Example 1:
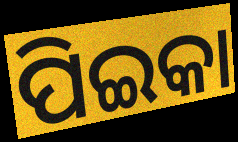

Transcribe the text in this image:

ପିଇକା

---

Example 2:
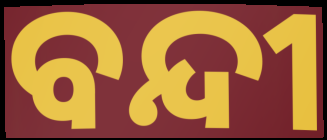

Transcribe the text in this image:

ବନ୍ଦୀ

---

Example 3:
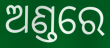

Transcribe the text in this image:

ଅଣ୍ଡରେ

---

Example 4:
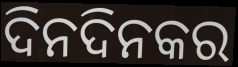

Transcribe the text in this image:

ଦିନଦିନକର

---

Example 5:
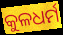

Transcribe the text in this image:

କୁଳଧର୍ମ